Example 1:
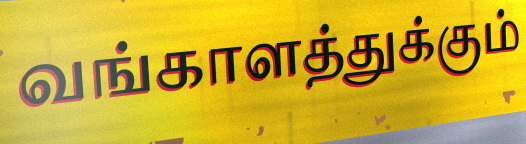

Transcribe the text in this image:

வங்காளத்துக்கும்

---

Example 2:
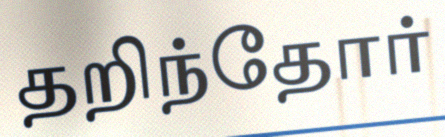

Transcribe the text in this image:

தறிந்தோர்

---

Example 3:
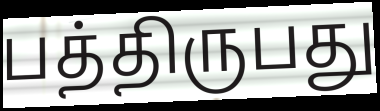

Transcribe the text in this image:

பத்திருபது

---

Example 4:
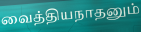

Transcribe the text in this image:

வைத்தியநாதனும்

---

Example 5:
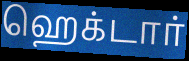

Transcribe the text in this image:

ஹெக்டார்